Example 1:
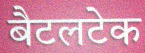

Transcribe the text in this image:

बैटलटेक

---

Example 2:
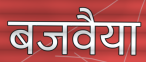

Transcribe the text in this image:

बजवैया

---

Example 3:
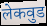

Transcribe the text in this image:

लेकवुड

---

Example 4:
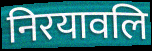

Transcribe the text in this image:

निरयावलि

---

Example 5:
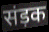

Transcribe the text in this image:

संड़क